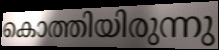
കൊത്തിയിരുന്നു